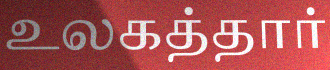
உலகத்தார்